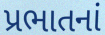
પ્રભાતનાં